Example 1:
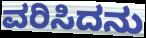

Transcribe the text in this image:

ವರಿಸಿದನು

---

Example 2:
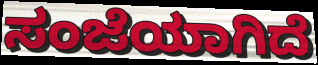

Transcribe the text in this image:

ಸಂಜೆಯಾಗಿದೆ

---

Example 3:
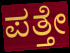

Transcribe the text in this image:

ಪತ್ತೇ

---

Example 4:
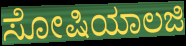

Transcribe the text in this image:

ಸೋಷಿಯಾಲಜಿ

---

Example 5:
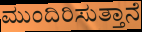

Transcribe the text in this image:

ಮುಂದಿರಿಸುತ್ತಾನೆ